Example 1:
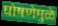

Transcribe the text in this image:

घोषणेमुळे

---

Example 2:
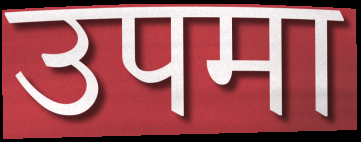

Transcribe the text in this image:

उपमा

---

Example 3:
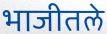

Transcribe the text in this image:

भाजीतले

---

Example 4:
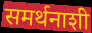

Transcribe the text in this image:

समर्थनाशी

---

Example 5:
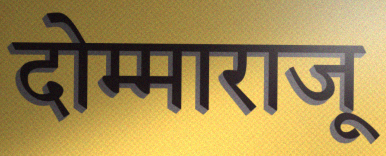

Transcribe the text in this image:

दोम्माराजू